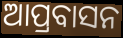
ଆପ୍ରବାସନ